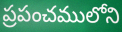
ప్రపంచములోని